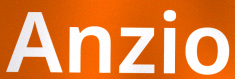
Anzio